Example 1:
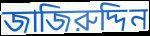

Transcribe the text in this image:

জাজিরুদ্দিন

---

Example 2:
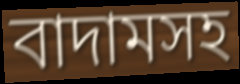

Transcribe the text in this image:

বাদামসহ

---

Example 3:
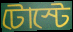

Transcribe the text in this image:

টোস্টে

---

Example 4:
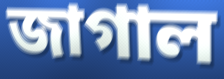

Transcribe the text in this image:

জাগাল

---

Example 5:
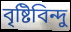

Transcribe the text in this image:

বৃষ্টিবিন্দু